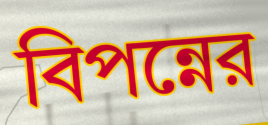
বিপন্নের